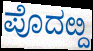
ಪೊದೞ್ದ